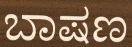
ಬಾಷಣ